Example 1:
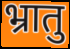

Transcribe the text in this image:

भ्रातु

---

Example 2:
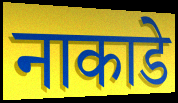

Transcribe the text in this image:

नाकाडे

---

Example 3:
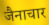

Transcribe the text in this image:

जैनाचार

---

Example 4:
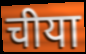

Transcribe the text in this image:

चीया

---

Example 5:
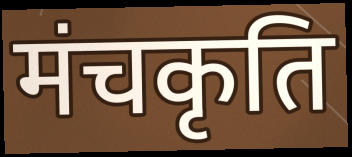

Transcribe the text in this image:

मंचकृति